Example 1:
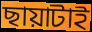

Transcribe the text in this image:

ছায়াটাই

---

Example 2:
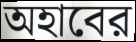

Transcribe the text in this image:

অহাবের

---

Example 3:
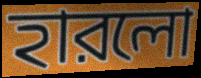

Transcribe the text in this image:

হারলো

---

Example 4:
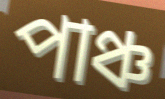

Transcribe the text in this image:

পাঞ্চ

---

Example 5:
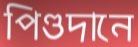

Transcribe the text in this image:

পিণ্ডদানে